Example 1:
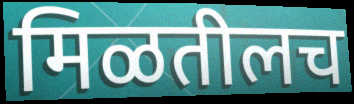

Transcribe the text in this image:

मिळतीलच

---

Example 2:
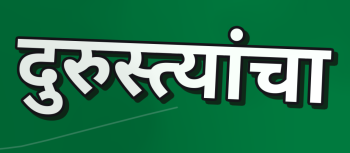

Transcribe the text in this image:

दुरुस्त्यांचा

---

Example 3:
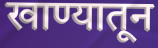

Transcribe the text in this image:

खाण्यातून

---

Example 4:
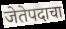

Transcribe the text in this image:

जेतेपदाचा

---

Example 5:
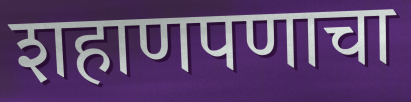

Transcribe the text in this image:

शहाणपणाचा